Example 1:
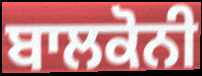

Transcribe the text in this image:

ਬਾਲਕੋਨੀ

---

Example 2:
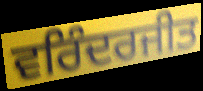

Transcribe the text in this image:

ਵਰਿੰਦਰਜੀਤ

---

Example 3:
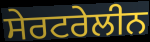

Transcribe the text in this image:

ਸੇਰਟਰੇਲੀਨ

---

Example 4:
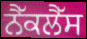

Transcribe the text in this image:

ਨੈੱਕਲੈੱਸ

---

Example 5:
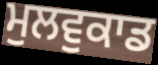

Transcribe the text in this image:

ਮੁਲਵੁਕਾਡ